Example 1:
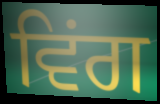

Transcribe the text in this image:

ਵਿਂਗ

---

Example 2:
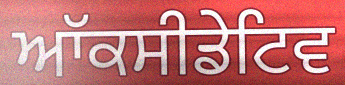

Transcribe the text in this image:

ਆੱਕਸੀਡੇਟਿਵ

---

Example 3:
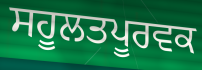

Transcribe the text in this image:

ਸਹੂਲਤਪੂਰਵਕ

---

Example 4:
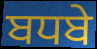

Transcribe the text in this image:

ਬਧਬੇ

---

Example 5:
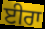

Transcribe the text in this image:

ਈਰਾ